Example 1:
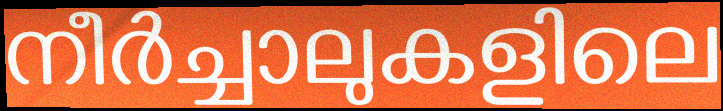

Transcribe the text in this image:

നീർച്ചാലുകളിലെ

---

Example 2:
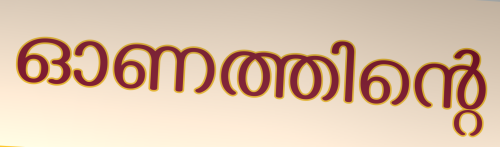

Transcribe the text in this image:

ഓണത്തിന്റെ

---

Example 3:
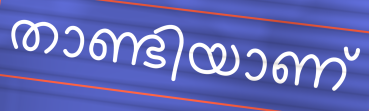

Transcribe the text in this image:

താണ്ടിയാണ്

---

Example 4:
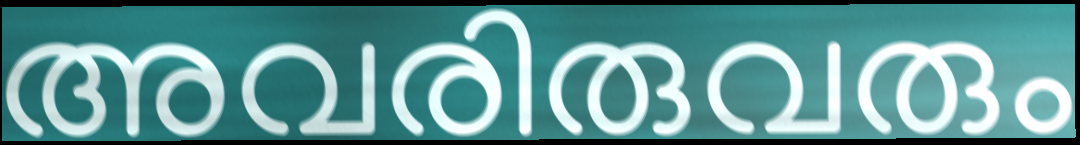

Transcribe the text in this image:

അവരിരുവരും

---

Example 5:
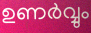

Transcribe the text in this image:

ഉണർവ്വും